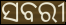
ସବରୀ